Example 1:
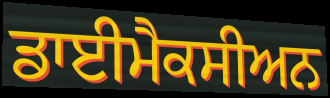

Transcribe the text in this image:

ਡਾਈਮੈਕਸੀਅਨ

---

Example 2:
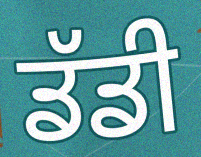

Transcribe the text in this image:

ਡੱਡੀ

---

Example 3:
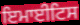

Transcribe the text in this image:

ਇਮਾਈਟਿਸ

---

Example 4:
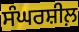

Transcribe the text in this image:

ਸੰਘਰਸ਼ੀਲ਼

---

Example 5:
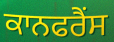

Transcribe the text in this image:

ਕਾਨਫਰੈਂਸ